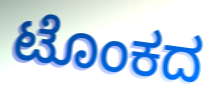
ಟೊಂಕದ